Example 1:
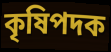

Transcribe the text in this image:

কৃষিপদক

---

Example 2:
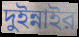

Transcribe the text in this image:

দুইন্নাইর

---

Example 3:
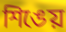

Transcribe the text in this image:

শিঙেয়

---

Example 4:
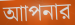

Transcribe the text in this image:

আাপনার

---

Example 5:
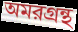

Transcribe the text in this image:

অমরগ্রন্থ